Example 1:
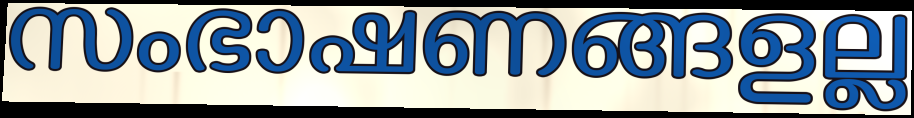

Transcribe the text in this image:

സംഭാഷണങ്ങളല്ല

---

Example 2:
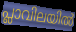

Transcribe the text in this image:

പ്ലാവിലയിൽ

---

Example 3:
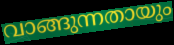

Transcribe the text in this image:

വാങ്ങുന്നതായും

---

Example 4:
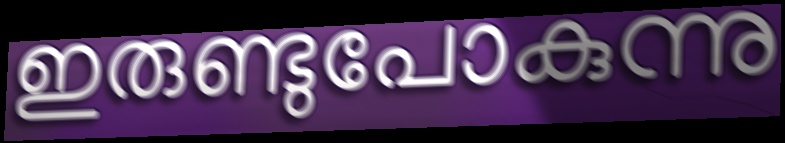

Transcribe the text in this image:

ഇരുണ്ടുപോകുന്നു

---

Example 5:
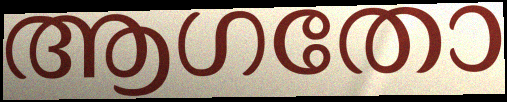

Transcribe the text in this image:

ആഗതോ